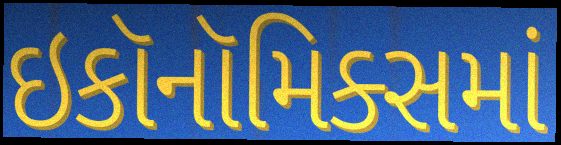
ઇકૉનૉમિક્સમાં